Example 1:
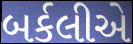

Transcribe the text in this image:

બર્કલીએ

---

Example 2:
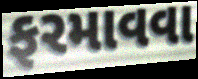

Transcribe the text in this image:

ફરમાવવા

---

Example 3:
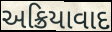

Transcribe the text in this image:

અક્રિયાવાદ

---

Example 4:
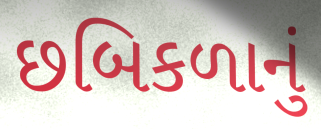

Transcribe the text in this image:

છબિકળાનું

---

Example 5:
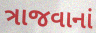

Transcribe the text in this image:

ત્રાજવાનાં